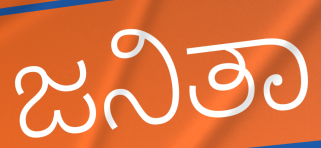
ಜನಿತಾ